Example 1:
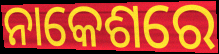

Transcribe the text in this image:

ନାକେଶରେ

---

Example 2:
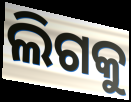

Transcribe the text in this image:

ଲିଗକୁ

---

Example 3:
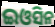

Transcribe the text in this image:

ଇଓସିନ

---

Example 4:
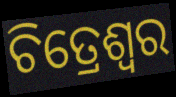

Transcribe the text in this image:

ଚିତ୍ରେଶ୍ୱର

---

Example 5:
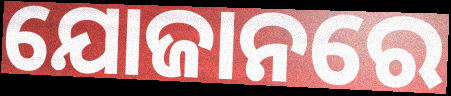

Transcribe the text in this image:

ଯୋଜାନରେ